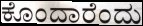
ಕೊಂದಾರೆಂದು